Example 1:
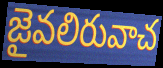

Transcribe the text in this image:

జైవలిరువాచ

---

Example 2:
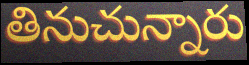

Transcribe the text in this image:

తినుచున్నారు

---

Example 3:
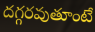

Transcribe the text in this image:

దగ్గరవుతూంటే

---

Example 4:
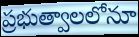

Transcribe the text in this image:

ప్రభుత్వాలలోనూ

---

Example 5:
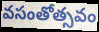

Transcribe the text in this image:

వసంతోత్సవం